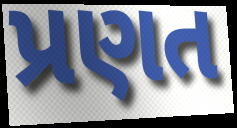
પ્રણત